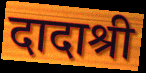
दादाश्री